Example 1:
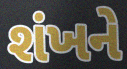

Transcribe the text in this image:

શંખને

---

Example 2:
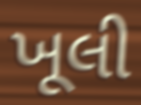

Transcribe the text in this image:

ખૂલી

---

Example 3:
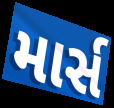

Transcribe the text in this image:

માર્સ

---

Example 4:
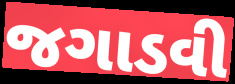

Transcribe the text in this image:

જગાડવી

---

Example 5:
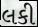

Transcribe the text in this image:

લકી